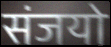
संजयो